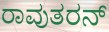
ರಾವುತರನ್